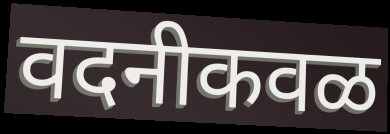
वदनीकवळ